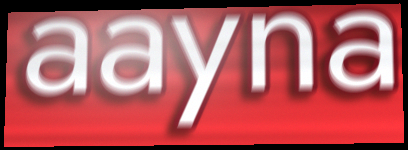
aayna